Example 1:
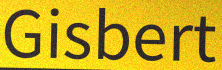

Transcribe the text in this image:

Gisbert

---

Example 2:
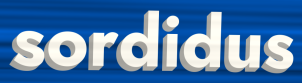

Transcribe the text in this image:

sordidus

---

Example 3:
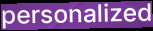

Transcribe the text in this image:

personalized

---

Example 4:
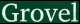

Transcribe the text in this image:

Grovel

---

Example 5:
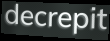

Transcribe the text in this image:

decrepit